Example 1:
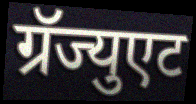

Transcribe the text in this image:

ग्रॅज्युएट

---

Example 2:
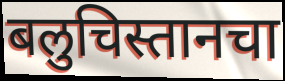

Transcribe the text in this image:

बलुचिस्तानचा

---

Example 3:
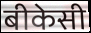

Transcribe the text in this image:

बीकेसी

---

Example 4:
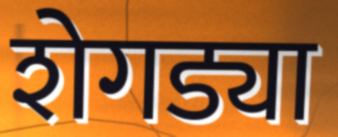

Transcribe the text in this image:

शेगड्या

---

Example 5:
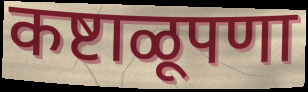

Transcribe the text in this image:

कष्टाळूपणा